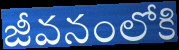
జీవనంలోకి